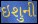
ઇશુની